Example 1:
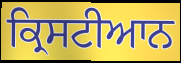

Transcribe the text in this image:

ਕ੍ਰਿਸਟੀਆਨ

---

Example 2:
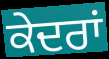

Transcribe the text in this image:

ਕੇਦਰਾਂ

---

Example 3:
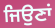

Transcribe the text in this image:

ਜਿਉਣਾਂ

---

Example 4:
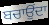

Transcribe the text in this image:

ਬਚਾਉਂਦਾ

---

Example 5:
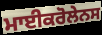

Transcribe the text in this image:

ਮਾਈਕਰੋਲੇਨਸ